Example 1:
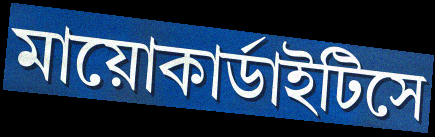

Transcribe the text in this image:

মায়োকার্ডাইটিসে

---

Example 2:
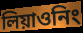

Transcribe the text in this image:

লিয়াওনিং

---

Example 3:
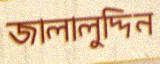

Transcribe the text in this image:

জালালুদ্দিন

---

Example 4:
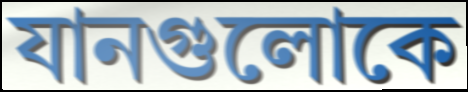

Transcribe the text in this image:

যানগুলোকে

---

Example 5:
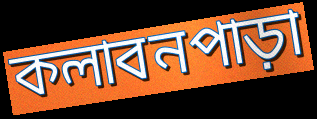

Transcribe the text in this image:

কলাবনপাড়া